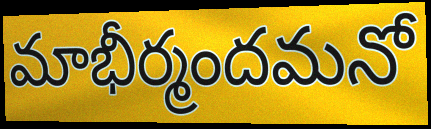
మాభీర్మందమనో